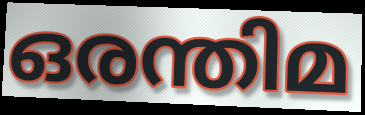
ഒരന്തിമ